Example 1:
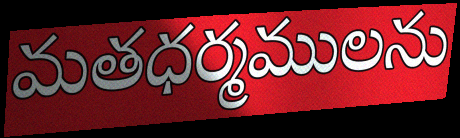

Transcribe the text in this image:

మతధర్మములను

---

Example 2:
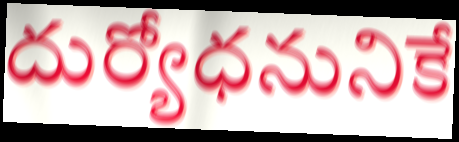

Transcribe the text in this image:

దుర్యోధనునికే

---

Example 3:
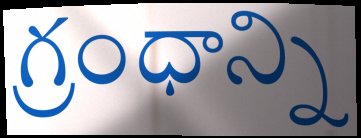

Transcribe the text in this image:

గ్రంధాన్ని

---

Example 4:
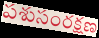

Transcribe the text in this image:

పశుసంరక్షణ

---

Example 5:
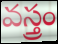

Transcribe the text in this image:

వస్త్రం